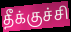
தீக்குச்சி